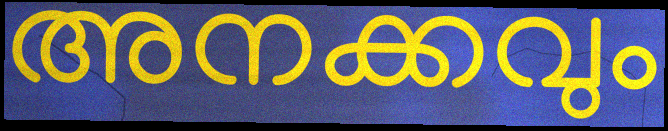
അനക്കവും